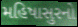
મહિષાસુરનો